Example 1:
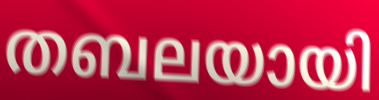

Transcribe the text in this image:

തബലയായി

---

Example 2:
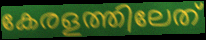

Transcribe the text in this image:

കേരളത്തിലേത്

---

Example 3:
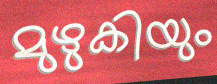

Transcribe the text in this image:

മുഴുകിയും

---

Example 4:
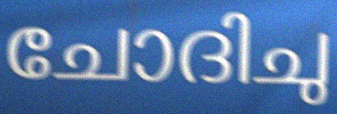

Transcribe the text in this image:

ചോദിചു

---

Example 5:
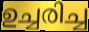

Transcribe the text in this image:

ഉച്ചരിച്ച